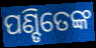
ପଣ୍ଡିତେଙ୍କ